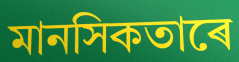
মানসিকতাৰে